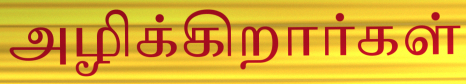
அழிக்கிறார்கள்